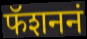
फॅशननं